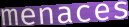
menaces